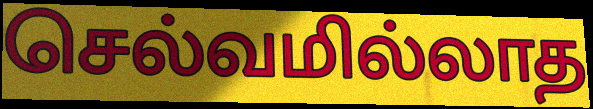
செல்வமில்லாத